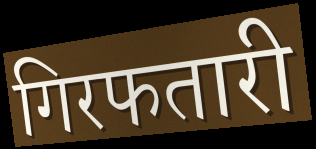
गिरफतारी